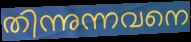
തിന്നുന്നവനെ